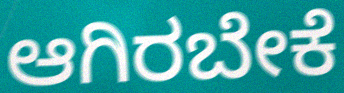
ಆಗಿರಬೇಕೆ